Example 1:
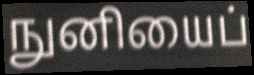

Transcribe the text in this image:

நுனியைப்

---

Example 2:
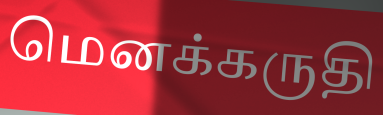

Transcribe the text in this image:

மெனக்கருதி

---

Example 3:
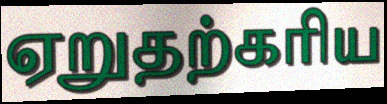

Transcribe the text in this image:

ஏறுதற்கரிய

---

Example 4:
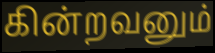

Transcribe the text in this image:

கின்றவனும்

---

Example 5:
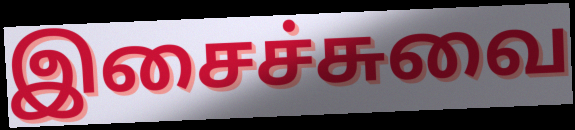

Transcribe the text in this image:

இசைச்சுவை